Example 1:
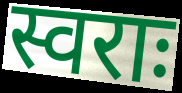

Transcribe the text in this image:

स्वराः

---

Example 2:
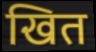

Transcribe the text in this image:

खित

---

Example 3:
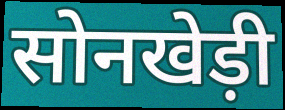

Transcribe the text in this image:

सोनखेड़ी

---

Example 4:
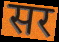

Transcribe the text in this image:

सर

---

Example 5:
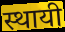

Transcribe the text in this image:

स्थायी